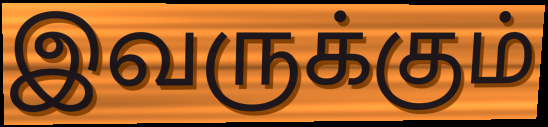
இவருக்கும்